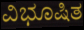
ವಿಭೂಷಿತ